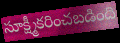
సూక్ష్మీకరించబడింది